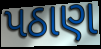
પઠાણ